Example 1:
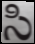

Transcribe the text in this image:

సి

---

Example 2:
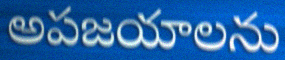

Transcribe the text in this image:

అపజయాలను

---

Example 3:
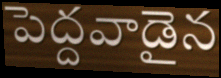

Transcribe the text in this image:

పెద్దవాడైన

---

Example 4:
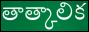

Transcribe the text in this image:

తాత్కాలిక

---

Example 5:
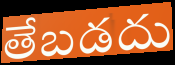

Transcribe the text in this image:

తేబడదు